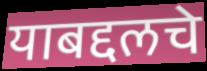
याबद्दलचे